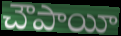
చౌపాయీ